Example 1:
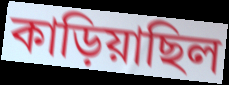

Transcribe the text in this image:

কাড়িয়াছিল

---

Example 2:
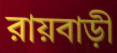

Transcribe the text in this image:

রায়বাড়ী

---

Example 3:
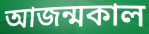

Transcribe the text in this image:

আজন্মকাল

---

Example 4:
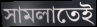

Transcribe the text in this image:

সামলাতেই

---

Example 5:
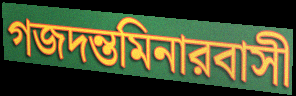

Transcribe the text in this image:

গজদন্তমিনারবাসী